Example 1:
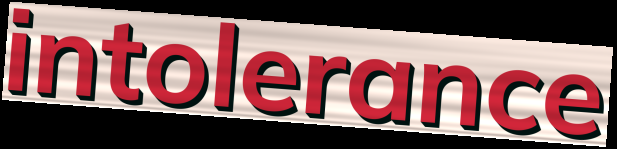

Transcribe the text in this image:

intolerance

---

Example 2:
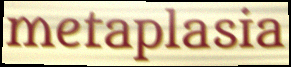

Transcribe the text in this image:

metaplasia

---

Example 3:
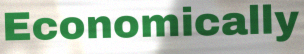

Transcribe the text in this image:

Economically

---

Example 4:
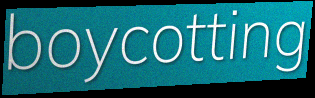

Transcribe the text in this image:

boycotting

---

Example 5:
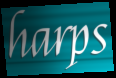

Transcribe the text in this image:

harps